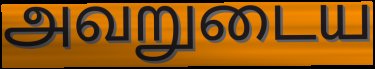
அவறுடைய